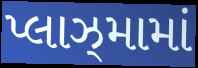
પ્લાઝ્મામાં